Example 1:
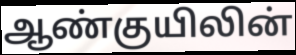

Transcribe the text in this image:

ஆண்குயிலின்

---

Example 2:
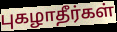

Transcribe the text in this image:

புகழாதீர்கள்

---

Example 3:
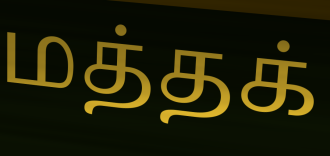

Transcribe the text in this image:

மத்தக்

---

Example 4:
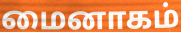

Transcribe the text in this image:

மைனாகம்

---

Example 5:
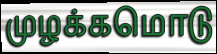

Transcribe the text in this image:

முழக்கமொடு